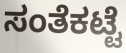
ಸಂತೆಕಟ್ಟೆ